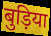
बुड़िया